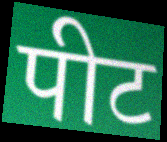
पीट